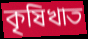
কৃষিখাত